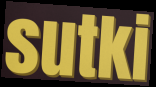
sutki